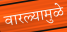
वारल्यामुळे